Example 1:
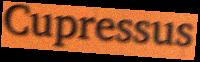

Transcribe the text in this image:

Cupressus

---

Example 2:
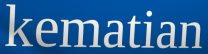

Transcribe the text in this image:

kematian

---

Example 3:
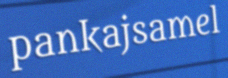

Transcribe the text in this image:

pankajsamel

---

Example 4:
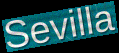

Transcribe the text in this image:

Sevilla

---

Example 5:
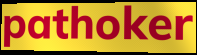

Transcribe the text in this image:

pathoker